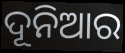
ଦୂନିଆର